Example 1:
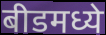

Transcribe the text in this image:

बीडमध्ये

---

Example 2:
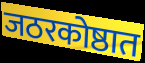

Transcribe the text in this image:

जठरकोष्ठात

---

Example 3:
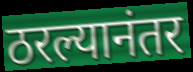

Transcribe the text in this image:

ठरल्यानंतर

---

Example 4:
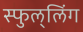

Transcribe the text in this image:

स्फुल्लिंग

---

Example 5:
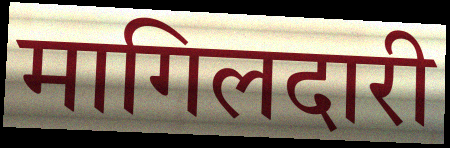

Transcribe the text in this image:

मागिलदारी